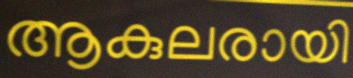
ആകുലരായി